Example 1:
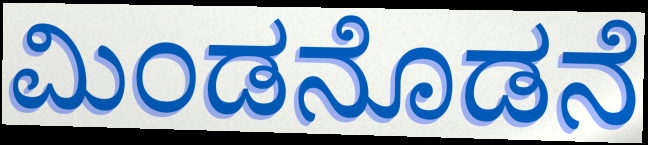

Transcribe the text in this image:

ಮಿಂಡನೊಡನೆ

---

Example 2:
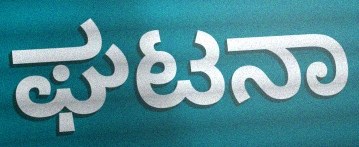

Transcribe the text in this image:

ಘಟನಾ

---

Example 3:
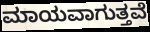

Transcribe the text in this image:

ಮಾಯವಾಗುತ್ತವೆ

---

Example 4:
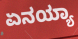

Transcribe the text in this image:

ಏನಯ್ಯಾ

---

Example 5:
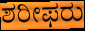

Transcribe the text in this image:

ಶರೀಫರು